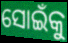
ସୋଇଁକୁ